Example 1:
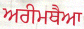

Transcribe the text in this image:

ਅਰੀਮਥੈਆ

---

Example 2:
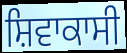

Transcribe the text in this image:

ਸ਼ਿਵਾਕਾਸੀ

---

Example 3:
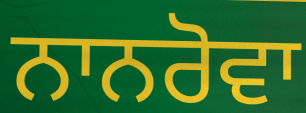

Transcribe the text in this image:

ਨਾਨਰੋਵਾ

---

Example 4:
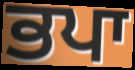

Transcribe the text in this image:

ਭਪਾ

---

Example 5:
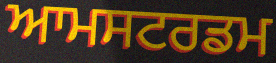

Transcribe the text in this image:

ਆਮਸਟਰਡਮ